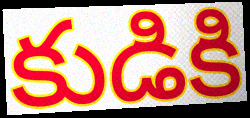
కుడికి